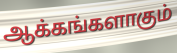
ஆக்கங்களாகும்